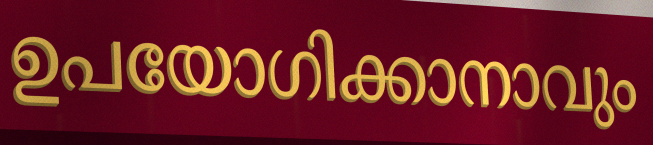
ഉപയോഗിക്കാനാവും